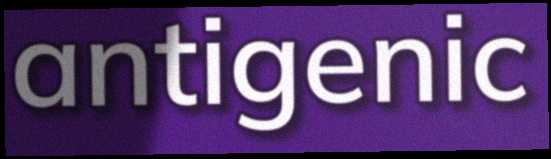
antigenic